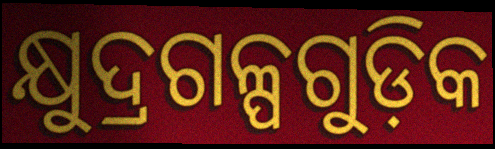
କ୍ଷୁଦ୍ରଗଳ୍ପଗୁଡ଼ିକ